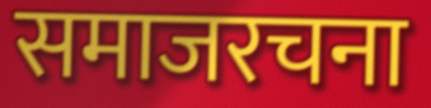
समाजरचना